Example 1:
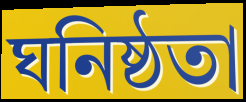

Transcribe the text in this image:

ঘনিষ্ঠতা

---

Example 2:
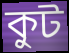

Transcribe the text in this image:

কুট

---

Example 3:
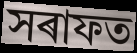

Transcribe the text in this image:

সৰাফত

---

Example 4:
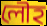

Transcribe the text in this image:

লৌহ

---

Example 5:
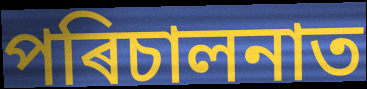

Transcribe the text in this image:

পৰিচালনাত